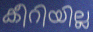
കീറിയില്ല